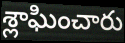
శ్లాఘించారు